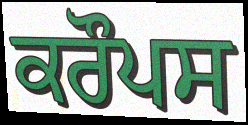
ਕਰੌਪਸ